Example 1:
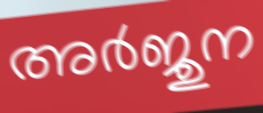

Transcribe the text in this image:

അർജുന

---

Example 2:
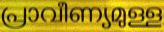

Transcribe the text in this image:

പ്രാവീണ്യമുള്ള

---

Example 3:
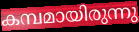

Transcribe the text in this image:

കമ്പമായിരുന്നു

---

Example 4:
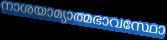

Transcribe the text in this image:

നാശയാമ്യാത്മഭാവസ്ഥോ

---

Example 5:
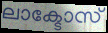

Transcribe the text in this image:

ലാക്ടോസ്